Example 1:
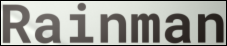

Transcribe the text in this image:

Rainman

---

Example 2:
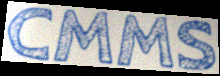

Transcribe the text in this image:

CMMS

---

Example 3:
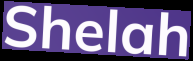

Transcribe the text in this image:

Shelah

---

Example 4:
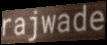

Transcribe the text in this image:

rajwade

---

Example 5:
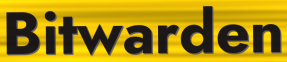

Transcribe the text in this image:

Bitwarden